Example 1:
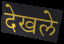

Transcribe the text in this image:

देखले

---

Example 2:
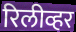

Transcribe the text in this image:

रिलीव्हर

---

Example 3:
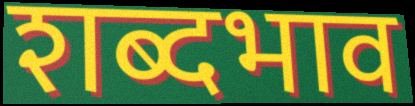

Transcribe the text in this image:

शब्दभाव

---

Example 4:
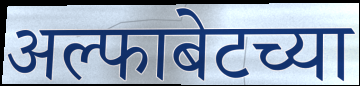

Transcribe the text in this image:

अल्फाबेटच्या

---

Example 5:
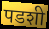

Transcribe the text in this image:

पडशी